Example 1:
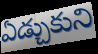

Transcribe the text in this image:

ఏడ్చుకుని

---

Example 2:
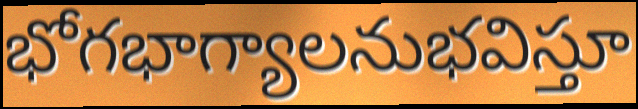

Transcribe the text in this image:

భోగభాగ్యాలనుభవిస్తూ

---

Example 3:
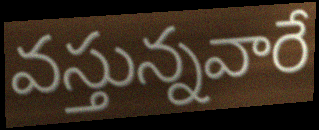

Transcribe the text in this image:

వస్తున్నవారే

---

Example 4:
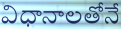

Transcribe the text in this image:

విధానాలతోనే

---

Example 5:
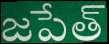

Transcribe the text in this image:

జపేత్